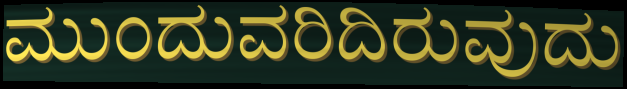
ಮುಂದುವರಿದಿರುವುದು